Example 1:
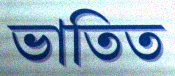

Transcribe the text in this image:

ভাতিত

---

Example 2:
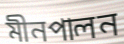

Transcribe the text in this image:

মীনপালন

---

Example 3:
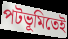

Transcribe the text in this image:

পটভূমিতেই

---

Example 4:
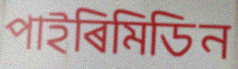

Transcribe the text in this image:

পাইৰিমিডিন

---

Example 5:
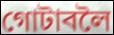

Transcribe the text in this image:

গোটাবলৈ